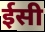
ईसी